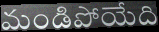
మండిపోయేది